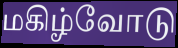
மகிழ்வோடு